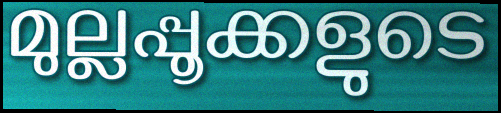
മുല്ലപ്പൂക്കളുടെ